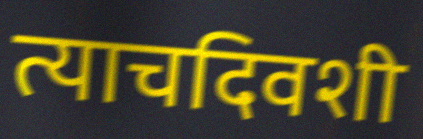
त्याचदिवशी